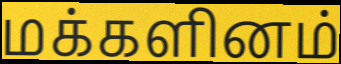
மக்களினம்